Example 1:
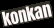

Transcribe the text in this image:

konkan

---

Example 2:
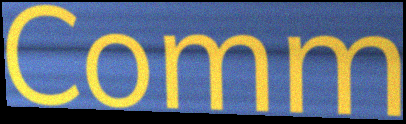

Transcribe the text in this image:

Comm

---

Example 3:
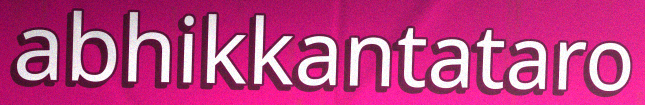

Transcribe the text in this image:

abhikkantataro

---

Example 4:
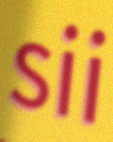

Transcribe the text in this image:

sii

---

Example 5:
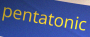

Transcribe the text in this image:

pentatonic